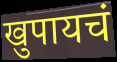
खुपायचं